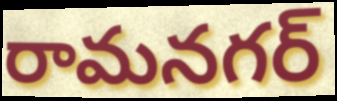
రామనగర్